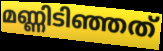
മണ്ണിടിഞ്ഞത്